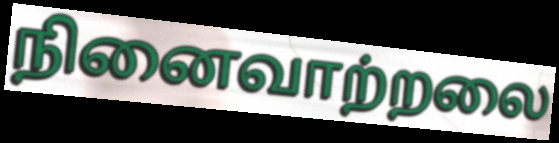
நினைவாற்றலை